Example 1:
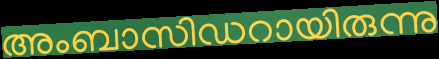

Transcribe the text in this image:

അംബാസിഡറായിരുന്നു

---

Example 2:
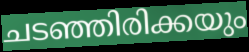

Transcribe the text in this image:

ചടഞ്ഞിരിക്കയും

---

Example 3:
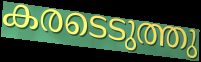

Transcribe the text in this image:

കരടെടുത്തു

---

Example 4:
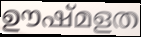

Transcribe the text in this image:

ഊഷ്മളത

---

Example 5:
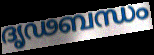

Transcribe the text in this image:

ദൃഢബന്ധം